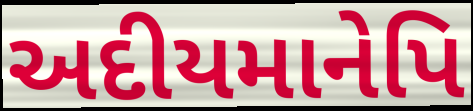
અદીયમાનેપિ